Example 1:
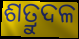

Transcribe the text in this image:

ଶତ୍ରୁଦଳ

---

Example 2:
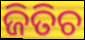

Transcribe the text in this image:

ଜିତିଚ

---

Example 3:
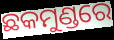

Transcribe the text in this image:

ଛକମୁଣ୍ଡରେ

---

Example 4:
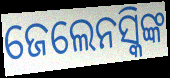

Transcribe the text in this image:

ଜେଲେନସ୍କିଙ୍କ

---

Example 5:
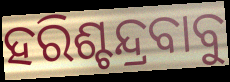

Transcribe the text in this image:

ହରିଶ୍ଚନ୍ଦ୍ରବାବୁ